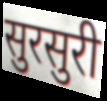
सुरसुरी